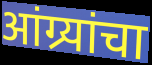
आंग्र्यांचा